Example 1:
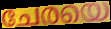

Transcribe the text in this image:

ചേരയെ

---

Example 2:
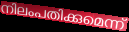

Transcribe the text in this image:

നിലംപതിക്കുമെന്ന്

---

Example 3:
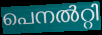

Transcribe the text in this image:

പെനൽറ്റി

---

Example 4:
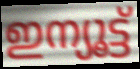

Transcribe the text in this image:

ഇന്യൂട്ട്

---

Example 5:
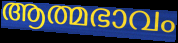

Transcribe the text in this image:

ആത്മഭാവം